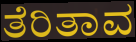
ತೆರಿತಾವ